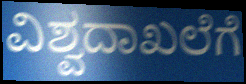
ವಿಶ್ವದಾಖಲೆಗೆ